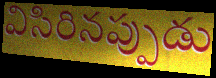
విసిరినప్పుడు